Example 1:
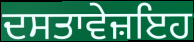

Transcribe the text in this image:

ਦਸਤਾਵੇਜ਼ਇਹ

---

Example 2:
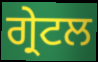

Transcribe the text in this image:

ਗ੍ਰੇਟਲ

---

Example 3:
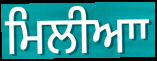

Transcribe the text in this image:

ਮਿਲੀਆਾ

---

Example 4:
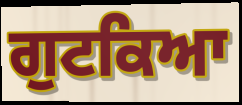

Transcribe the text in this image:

ਗੁਟਕਿਆ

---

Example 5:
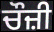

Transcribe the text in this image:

ਚੌਜ਼ੀ